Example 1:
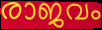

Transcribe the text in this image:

രാജവം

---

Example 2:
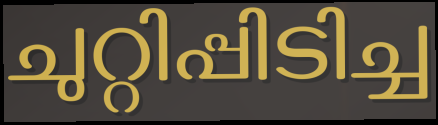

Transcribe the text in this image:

ചുറ്റിപ്പിടിച്ച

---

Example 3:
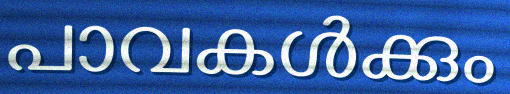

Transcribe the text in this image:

പാവകൾക്കും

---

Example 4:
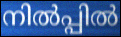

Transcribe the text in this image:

നിൽപ്പിൽ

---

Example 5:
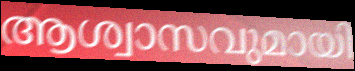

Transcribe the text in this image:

ആശ്വാസവുമായി